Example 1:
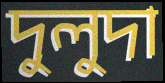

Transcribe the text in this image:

দুলুদা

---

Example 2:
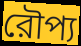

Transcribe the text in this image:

রৌপ্য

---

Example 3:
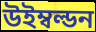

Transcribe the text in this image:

উইম্বল্ডন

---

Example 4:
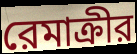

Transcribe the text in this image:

রেমাক্রীর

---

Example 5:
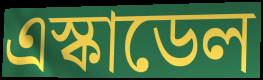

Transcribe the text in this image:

এস্কাডেল